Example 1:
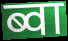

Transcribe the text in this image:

ब्वा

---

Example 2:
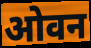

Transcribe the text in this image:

ओवन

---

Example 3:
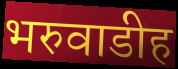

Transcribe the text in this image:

भरुवाडीह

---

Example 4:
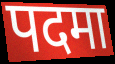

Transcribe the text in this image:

पदमा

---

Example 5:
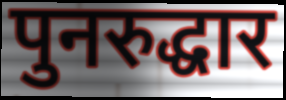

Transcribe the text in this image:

पुनरुद्धार